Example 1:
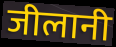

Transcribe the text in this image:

जीलानी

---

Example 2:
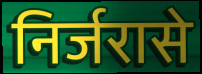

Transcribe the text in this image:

निर्जरासे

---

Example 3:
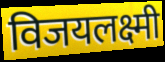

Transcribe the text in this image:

विजयलक्ष्मी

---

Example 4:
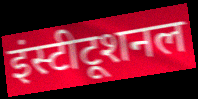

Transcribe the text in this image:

इंस्टीटूशनल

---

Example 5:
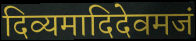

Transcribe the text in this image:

दिव्यमादिदेवमजं